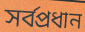
সর্বপ্রধান